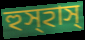
হুস্‌হাস্